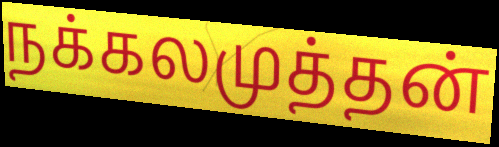
நக்கலமுத்தன்